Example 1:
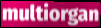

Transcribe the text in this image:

multiorgan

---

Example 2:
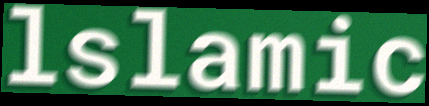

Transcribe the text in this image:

lslamic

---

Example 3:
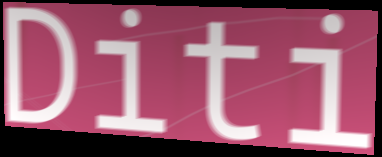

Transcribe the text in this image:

Diti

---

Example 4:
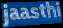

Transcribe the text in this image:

jaasthi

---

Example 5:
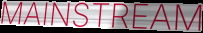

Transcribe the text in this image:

MAINSTREAM